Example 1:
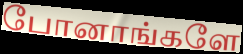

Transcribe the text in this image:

போனாங்களே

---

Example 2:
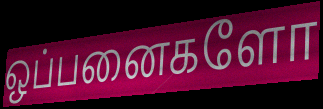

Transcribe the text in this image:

ஒப்பனைகளோ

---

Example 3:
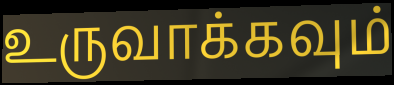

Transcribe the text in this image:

உருவாக்கவும்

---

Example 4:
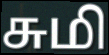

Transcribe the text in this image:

சுமி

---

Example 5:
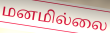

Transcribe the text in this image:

மனமில்லை